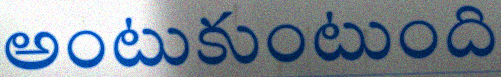
అంటుకుంటుంది